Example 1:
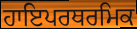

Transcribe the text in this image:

ਹਾਇਪਰਥਰਮਿਕ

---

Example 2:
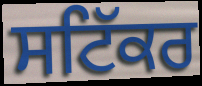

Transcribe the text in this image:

ਸਟਿੱਕਰ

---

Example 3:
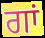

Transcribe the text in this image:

ਗਾਂ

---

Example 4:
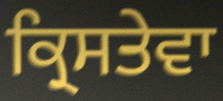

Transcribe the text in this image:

ਕ੍ਰਿਸਤੇਵਾ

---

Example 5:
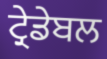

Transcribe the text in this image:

ਟ੍ਰੇਡੇਬਲ